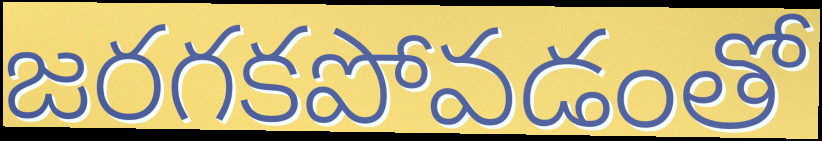
జరగకపోవడంతో